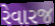
રેવારજ